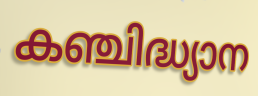
കഞ്ചിദ്ധ്യാന